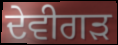
ਦੇਵੀਗੜ